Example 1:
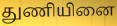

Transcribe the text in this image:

துணியினை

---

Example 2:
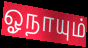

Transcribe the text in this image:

ஓநாயும்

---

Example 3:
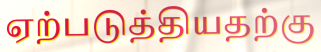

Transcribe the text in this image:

ஏற்படுத்தியதற்கு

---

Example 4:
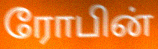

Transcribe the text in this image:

ரோபின்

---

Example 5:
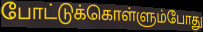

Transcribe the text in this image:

போட்டுக்கொள்ளும்போது